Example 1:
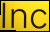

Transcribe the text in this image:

Inc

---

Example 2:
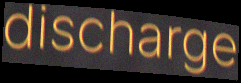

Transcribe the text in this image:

discharge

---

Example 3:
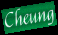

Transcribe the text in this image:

Cheung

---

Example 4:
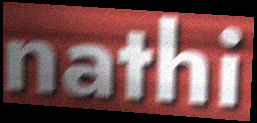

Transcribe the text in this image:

nathi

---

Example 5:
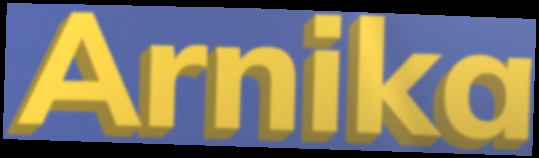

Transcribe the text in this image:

Arnika